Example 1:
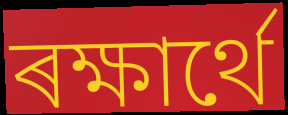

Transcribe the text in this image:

ৰক্ষাৰ্থে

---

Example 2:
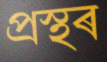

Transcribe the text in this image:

প্ৰস্থৰ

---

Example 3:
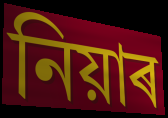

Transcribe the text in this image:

নিয়াৰ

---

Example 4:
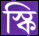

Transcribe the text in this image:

স্কি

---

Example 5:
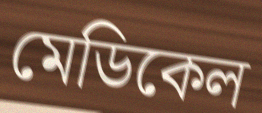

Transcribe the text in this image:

মেডিকেল